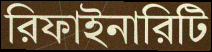
রিফাইনারিটি